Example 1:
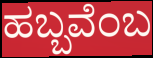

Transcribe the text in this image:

ಹಬ್ಬವೆಂಬ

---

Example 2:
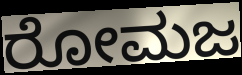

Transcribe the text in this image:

ರೋಮಜ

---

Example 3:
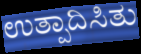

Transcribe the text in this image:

ಉತ್ಪಾದಿಸಿತು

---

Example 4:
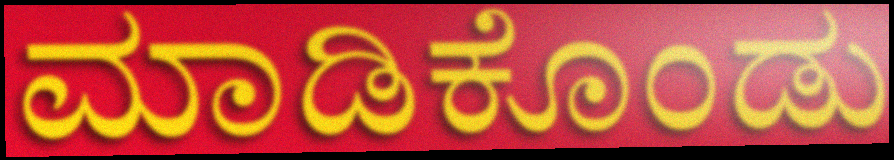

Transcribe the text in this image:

ಮಾಡಿಕೊಂಡು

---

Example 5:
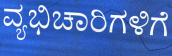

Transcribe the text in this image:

ವ್ಯಭಿಚಾರಿಗಳಿಗೆ